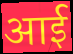
आई